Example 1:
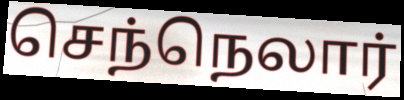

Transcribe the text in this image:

செந்நெலார்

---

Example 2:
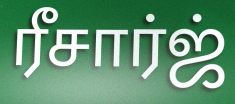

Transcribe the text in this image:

ரீசார்ஜ்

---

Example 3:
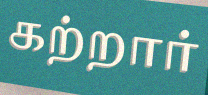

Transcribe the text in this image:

கற்றார்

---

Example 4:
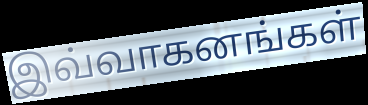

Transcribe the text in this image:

இவ்வாகனங்கள்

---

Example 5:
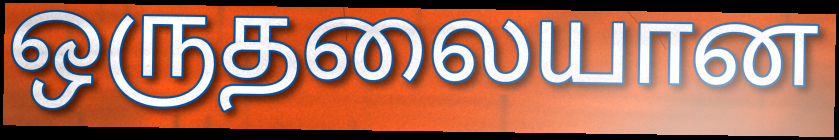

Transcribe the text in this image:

ஒருதலையான